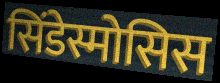
सिंडेस्मोसिस